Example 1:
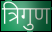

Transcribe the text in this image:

त्रिगुण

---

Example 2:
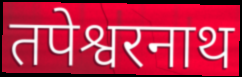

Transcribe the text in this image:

तपेश्वरनाथ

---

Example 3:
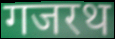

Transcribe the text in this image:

गजरथ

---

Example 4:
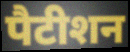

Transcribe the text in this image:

पैटीशन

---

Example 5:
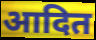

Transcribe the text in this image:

आदित